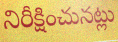
నిరీక్షించునట్లు